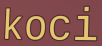
koci